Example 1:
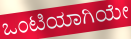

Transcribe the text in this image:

ಒಂಟಿಯಾಗಿಯೇ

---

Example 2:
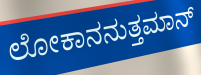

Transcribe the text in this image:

ಲೋಕಾನನುತ್ತಮಾನ್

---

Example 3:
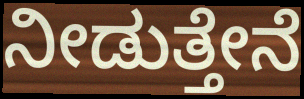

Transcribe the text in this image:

ನೀಡುತ್ತೇನೆ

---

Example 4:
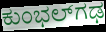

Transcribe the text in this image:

ಕುಂಭಲ್‌ಗಢ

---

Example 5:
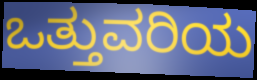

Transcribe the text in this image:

ಒತ್ತುವರಿಯ